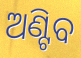
ଅଣ୍ଟିବ